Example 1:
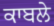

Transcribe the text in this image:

ਕਾਬਲੇ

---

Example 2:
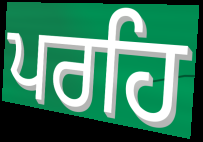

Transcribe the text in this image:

ਪਰਹਿ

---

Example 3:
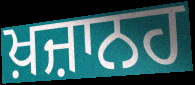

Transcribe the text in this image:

ਖ਼ਜ਼ਾਨਹ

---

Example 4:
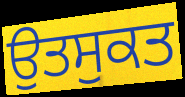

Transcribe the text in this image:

ਉਤਸੁਕਤ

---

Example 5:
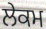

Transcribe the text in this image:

ਲੇਕਮ